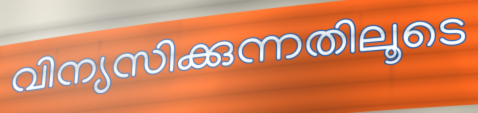
വിന്യസിക്കുന്നതിലൂടെ